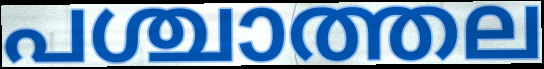
പശ്ചാത്തല